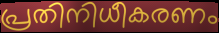
പ്രതിനിധീകരണം